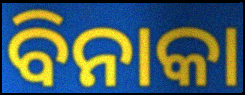
ବିନାକା